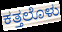
ಕತ್ತಲೊಳು